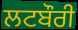
ਲਟਬੌਰੀ